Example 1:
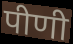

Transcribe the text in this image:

पीणी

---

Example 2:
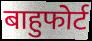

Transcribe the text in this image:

बाहुफोर्ट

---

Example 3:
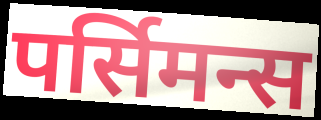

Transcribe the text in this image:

पर्सिमन्स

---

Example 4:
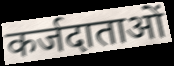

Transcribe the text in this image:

कर्जदाताओं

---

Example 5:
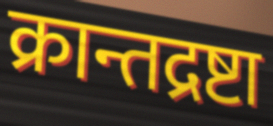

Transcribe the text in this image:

क्रान्तद्रष्टा